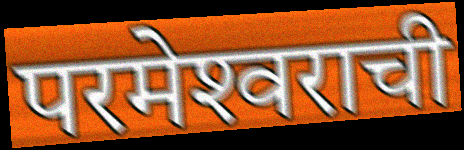
परमेश्‍वराची